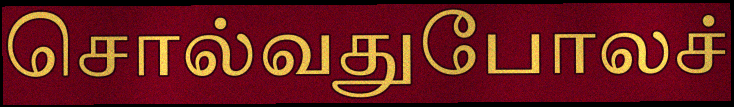
சொல்வதுபோலச்